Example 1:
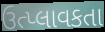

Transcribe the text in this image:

ઉત્પ્લાવકતા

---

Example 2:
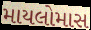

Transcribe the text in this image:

માયલોમાસ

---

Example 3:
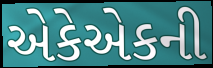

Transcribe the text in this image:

એકેએકની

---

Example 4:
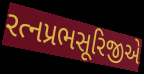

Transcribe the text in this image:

રત્નપ્રભસૂરિજીએ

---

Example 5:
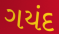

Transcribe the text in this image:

ગયંદ